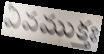
ఏవముక్తః